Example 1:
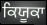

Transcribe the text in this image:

ਕਿਯੂਕਾ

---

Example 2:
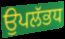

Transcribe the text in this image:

ਉਪਲੱਭਧ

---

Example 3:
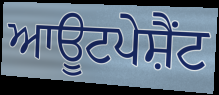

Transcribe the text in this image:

ਆਊਟਪੇਸ਼ੈਂਟ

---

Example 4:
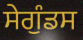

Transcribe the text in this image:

ਸੇਗੁੰਡਸ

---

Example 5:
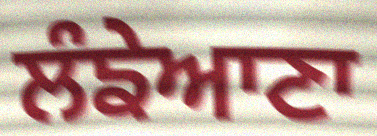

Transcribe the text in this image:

ਲੰਙੇਆਣਾ